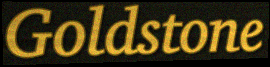
Goldstone